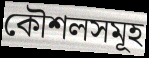
কৌশলসমূহ